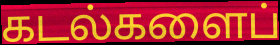
கடல்களைப்